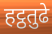
हट्ठतुढे